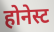
होनेस्ट